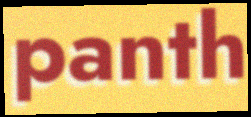
panth